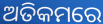
ଅତିକମରେ